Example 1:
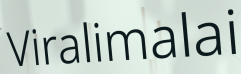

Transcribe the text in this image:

Viralimalai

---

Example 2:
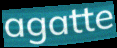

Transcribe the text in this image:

agatte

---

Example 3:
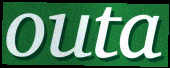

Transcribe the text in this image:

outa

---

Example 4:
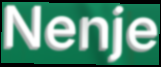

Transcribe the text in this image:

Nenje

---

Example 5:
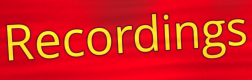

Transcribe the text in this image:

Recordings